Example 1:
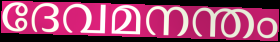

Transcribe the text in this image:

ദേവമനന്തം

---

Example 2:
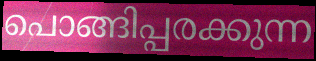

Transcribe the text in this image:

പൊങ്ങിപ്പരക്കുന്ന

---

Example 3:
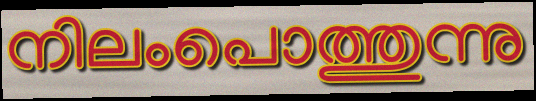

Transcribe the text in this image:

നിലംപൊത്തുന്നു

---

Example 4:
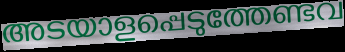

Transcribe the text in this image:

അടയാളപ്പെടുത്തേണ്ടവ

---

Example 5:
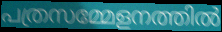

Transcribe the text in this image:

പത്രസമ്മേളനത്തിൽ